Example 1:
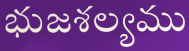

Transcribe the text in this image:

భుజశల్యము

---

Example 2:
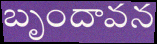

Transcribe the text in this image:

బృందావన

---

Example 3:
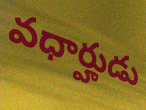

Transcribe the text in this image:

వధార్హుడు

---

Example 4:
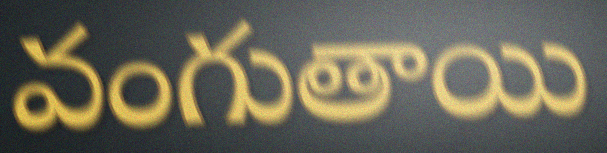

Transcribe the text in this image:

వంగుతాయి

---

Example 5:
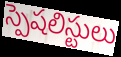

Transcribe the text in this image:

స్పెషలిస్టులు